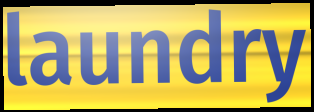
laundry